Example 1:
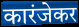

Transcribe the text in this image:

कारंजेकर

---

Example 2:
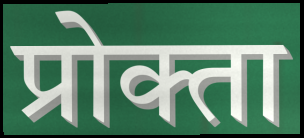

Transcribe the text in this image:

प्रोक्ता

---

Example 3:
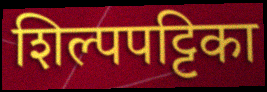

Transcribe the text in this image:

शिल्पपट्टिका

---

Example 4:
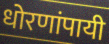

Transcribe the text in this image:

धोरणांपायी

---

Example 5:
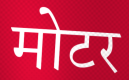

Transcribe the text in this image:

मोटर